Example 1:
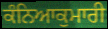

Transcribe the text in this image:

ਕੰਨਿਆਕੁਮਾਰੀ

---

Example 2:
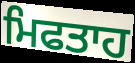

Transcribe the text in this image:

ਮਿਫਤਾਹ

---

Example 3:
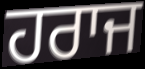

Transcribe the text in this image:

ਹਰਾਜ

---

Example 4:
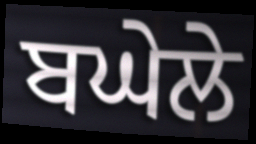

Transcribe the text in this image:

ਬਘੇਲੇ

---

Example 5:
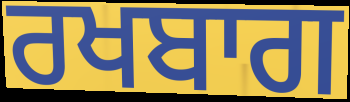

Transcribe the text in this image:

ਰਖਬਾਗ